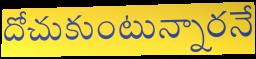
దోచుకుంటున్నారనే